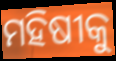
ମହିଷୀକୁ